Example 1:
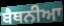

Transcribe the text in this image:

ਬੈਥਨੀਆ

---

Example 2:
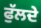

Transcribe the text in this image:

ਫੁੱਲਦੇ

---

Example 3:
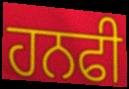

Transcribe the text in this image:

ਹਨਫੀ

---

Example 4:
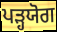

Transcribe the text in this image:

ਪੜ੍ਹਯੋਗ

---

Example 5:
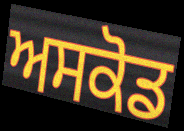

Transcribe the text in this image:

ਅਸਕੋਡ